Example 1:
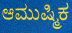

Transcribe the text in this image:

ಆಮುಷ್ಮಿಕ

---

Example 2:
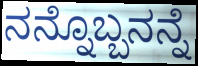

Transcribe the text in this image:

ನನ್ನೊಬ್ಬನನ್ನೆ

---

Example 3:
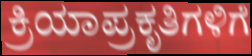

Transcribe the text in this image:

ಕ್ರಿಯಾಪ್ರಕೃತಿಗಳಿಗೆ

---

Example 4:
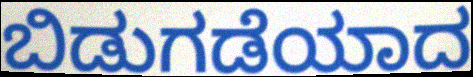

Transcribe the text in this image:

ಬಿಡುಗಡೆಯಾದ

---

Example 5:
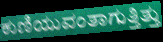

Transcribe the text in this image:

ಕುಣಿಯುವಂತಾಗುತ್ತಿತ್ತು